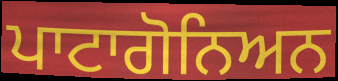
ਪਾਟਾਗੋਨਿਅਨ